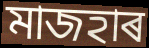
মাজহাৰ